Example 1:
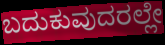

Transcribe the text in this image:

ಬದುಕುವುದರಲ್ಲೇ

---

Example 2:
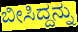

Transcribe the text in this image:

ಬೀಸಿದ್ದನ್ನು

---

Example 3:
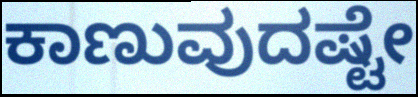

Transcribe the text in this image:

ಕಾಣುವುದಷ್ಟೇ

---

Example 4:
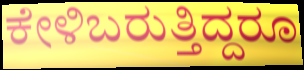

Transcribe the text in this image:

ಕೇಳಿಬರುತ್ತಿದ್ದರೂ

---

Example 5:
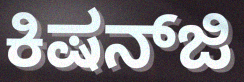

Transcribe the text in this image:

ಕಿಷನ್‌ಜಿ